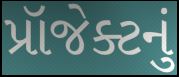
પ્રૉજેક્ટનું